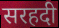
सरहदी